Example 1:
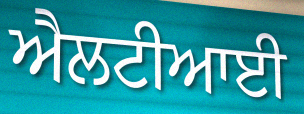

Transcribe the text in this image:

ਐਲਟੀਆਈ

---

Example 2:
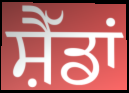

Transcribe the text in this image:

ਸ਼ੈੱਡਾਂ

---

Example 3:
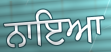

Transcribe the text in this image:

ਨਾਇਆ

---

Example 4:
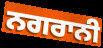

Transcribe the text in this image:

ਨਗਰਾਨੀ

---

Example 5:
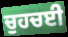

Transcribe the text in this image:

ਚੁਹਚਈ